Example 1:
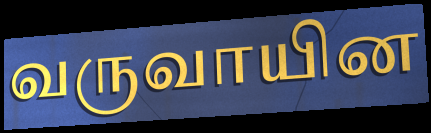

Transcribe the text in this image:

வருவாயின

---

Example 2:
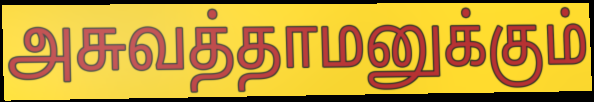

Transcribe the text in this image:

அசுவத்தாமனுக்கும்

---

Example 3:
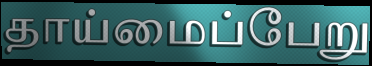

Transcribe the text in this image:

தாய்மைப்பேறு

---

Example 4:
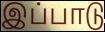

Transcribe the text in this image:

இப்பாடு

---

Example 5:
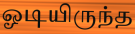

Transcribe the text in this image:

ஓடியிருந்த